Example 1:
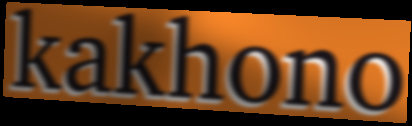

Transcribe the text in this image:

kakhono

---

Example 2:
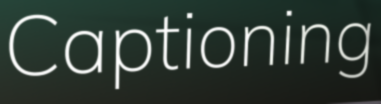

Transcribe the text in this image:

Captioning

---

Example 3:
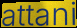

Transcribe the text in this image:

attani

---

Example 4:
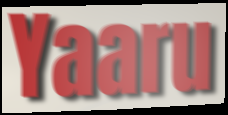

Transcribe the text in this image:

Yaaru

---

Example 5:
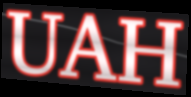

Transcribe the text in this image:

UAH